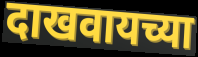
दाखवायच्या